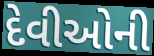
દેવીઓની